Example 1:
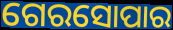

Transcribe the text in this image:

ଗେରସୋପାର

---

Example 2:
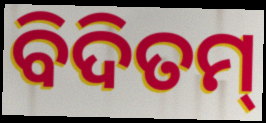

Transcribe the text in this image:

ବିଦିତମ୍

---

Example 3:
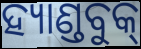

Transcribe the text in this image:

ହ୍ୟାଣ୍ଡବୁକ୍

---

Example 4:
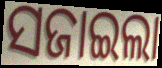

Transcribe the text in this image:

ସଜାଇଲା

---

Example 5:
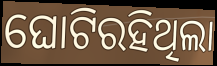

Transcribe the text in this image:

ଘୋଟିରହିଥିଲା